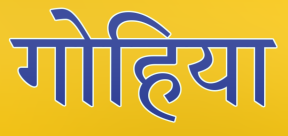
गोहिया